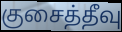
குசைத்தீவு